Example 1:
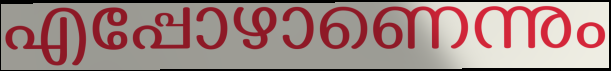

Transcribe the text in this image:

എപ്പോഴാണെന്നും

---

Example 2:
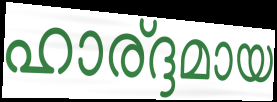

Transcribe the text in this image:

ഹാര്ദ്ദമായ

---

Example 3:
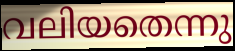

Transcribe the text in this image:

വലിയതെന്നു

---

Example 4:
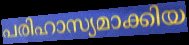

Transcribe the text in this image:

പരിഹാസ്യമാക്കിയ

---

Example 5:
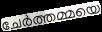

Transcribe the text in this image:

ചേർത്തമ്മയെ